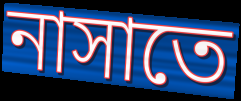
নাসাতে